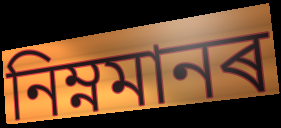
নিম্নমানৰ